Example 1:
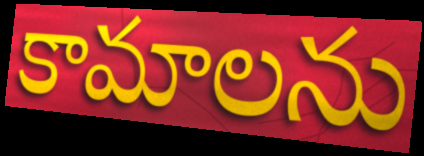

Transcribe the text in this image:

కామాలను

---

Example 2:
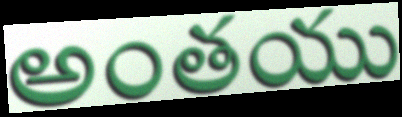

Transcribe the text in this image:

అంతయు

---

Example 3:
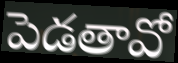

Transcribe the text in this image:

పెడతావో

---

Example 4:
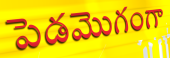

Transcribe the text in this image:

పెడమొగంగా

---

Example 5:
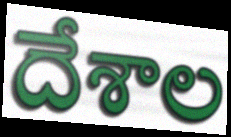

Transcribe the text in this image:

దేశాల